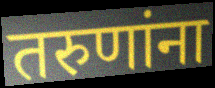
तरुणांना